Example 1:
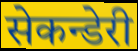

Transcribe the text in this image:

सेकन्डेरी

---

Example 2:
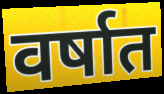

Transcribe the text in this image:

वर्षात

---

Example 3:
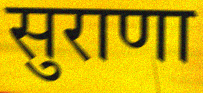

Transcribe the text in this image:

सुराणा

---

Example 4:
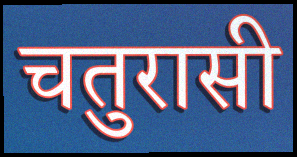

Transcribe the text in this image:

चतुरासी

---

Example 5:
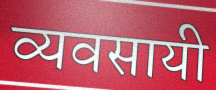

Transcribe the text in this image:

व्यवसायी